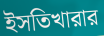
ইসতিখারার